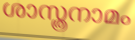
ശാസ്ത്രനാമം